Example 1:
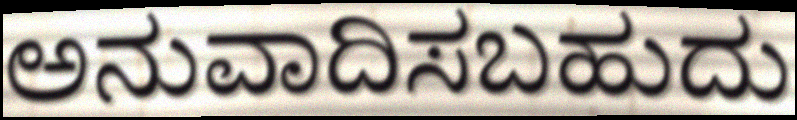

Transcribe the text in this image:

ಅನುವಾದಿಸಬಹುದು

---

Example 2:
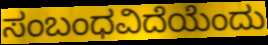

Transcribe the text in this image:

ಸಂಬಂಧವಿದೆಯೆಂದು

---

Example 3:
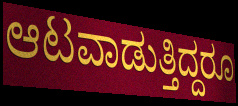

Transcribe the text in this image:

ಆಟವಾಡುತ್ತಿದ್ದರೂ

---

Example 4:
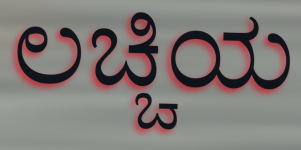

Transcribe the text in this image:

ಲಚ್ಚಿಯ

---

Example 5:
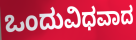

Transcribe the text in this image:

ಒಂದುವಿಧವಾದ